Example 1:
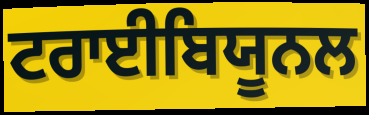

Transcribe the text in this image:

ਟਰਾਈਬਿਯੂਨਲ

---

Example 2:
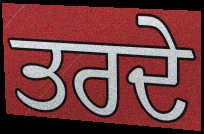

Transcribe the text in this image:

ਤਰਦੇ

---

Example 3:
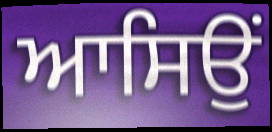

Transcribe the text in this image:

ਆਸਿਉਂ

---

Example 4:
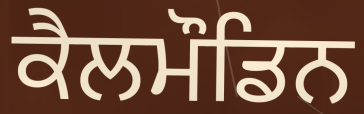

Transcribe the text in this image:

ਕੈਲਮੌਡਿਨ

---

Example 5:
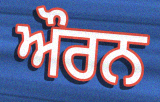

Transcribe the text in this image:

ਔਰਨ